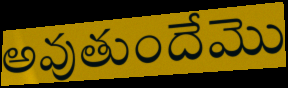
అవుతుందేమొ